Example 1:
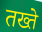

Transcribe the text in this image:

तख्ते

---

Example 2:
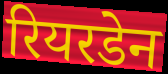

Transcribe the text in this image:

रियरडेन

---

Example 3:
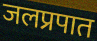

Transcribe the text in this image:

जलप्रपात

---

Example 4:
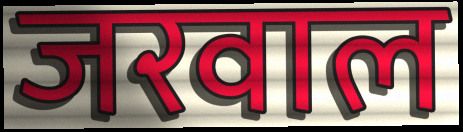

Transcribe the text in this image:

जरवाल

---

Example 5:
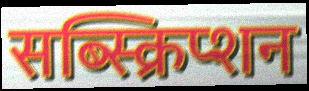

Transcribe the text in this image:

सब्स्क्रिप्शन